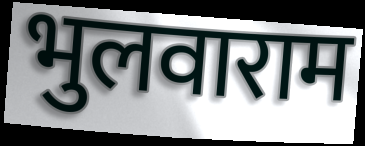
भुलवाराम